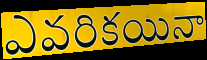
ఎవరికయినా